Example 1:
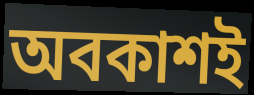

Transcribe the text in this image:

অবকাশই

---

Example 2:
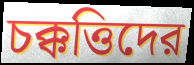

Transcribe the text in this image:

চক্কত্তিদের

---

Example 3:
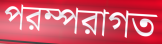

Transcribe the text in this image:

পরম্পরাগত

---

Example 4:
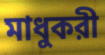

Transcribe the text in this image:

মাধুকরী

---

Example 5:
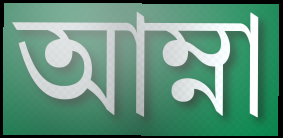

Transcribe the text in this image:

আম্না